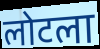
लोटला